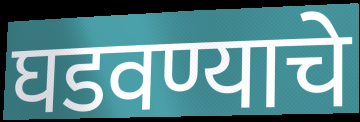
घडवण्याचे